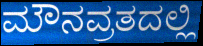
ಮೌನವ್ರತದಲ್ಲಿ